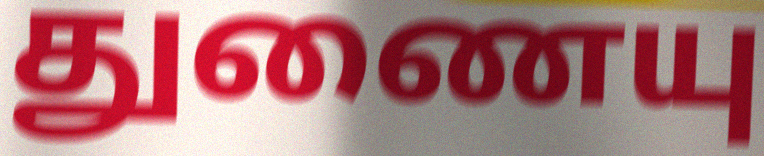
துணையு